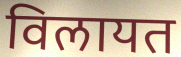
विलायत